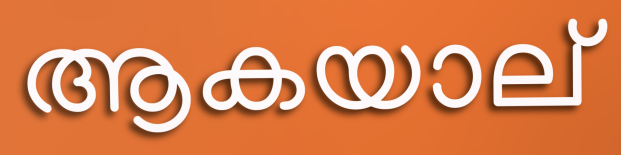
ആകയാല്